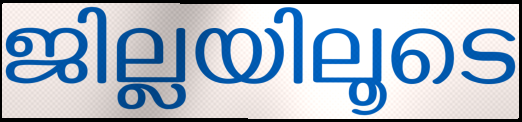
ജില്ലയിലൂടെ